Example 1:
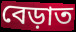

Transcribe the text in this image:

বেড়াত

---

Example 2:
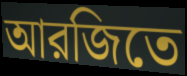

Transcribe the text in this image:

আরজিতে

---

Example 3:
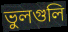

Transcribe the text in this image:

ভুলগুলি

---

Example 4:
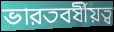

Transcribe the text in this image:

ভারতবর্ষীয়ত্ব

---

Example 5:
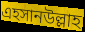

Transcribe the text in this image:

এহসানউল্লাহ